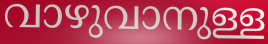
വാഴുവാനുള്ള